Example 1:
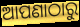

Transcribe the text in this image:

ଆପଣାଠାରୁ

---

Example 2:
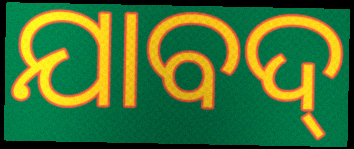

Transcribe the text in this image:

ଯାବଦ୍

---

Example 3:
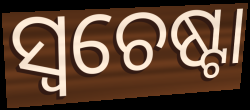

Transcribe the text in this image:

ସ୍ଵଚେଷ୍ଟା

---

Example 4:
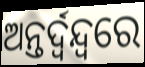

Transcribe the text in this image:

ଅନ୍ତର୍ଦ୍ୱନ୍ଦ୍ୱରେ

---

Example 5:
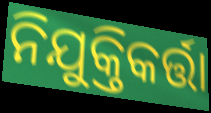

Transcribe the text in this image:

ନିଯୁକ୍ତିକର୍ତ୍ତା